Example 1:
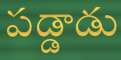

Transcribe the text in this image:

పడ్డాడు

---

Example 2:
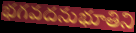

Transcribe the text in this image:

భగవదనుభూతిని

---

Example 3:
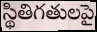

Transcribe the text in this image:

స్థితిగతులపై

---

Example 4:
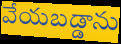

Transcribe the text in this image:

వేయబడ్డాను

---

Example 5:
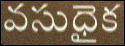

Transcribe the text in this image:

వసుధైక